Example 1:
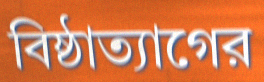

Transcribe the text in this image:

বিষ্ঠাত্যাগের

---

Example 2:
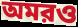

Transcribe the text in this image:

অমরও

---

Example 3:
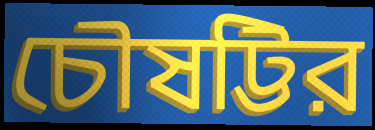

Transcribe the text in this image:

চৌষট্টির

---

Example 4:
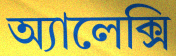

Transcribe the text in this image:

অ্যালেক্সি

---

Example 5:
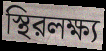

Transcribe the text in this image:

স্থিরলক্ষ্য